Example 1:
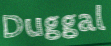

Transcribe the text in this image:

Duggal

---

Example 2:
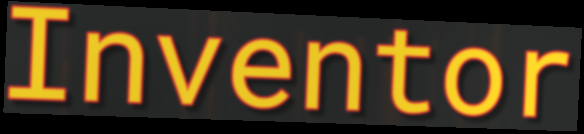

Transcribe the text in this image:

Inventor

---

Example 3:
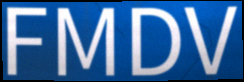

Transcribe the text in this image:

FMDV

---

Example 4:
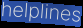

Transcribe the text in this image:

helplines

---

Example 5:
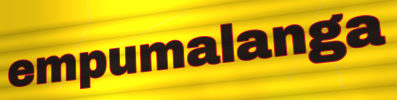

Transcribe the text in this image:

empumalanga